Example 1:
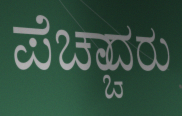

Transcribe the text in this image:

ಪೆಚ್ಚಾದರು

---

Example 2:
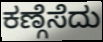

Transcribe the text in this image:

ಕಣ್ಗೆಸೆದು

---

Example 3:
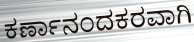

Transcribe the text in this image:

ಕರ್ಣಾನಂದಕರವಾಗಿ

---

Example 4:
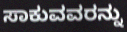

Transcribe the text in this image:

ಸಾಕುವವರನ್ನು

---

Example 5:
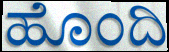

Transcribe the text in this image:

ಹೊಂದಿ